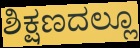
ಶಿಕ್ಷಣದಲ್ಲೂ